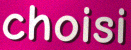
choisi